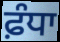
ਫ਼ੰਧਾ